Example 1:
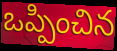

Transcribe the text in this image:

ఒప్పించిన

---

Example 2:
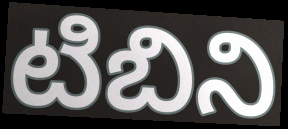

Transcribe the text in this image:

టిబిని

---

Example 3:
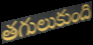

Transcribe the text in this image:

తగులుకుంది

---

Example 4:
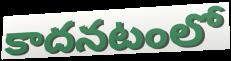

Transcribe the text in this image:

కాదనటంలో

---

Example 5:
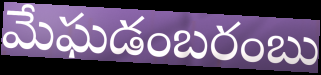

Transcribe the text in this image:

మేఘడంబరంబు